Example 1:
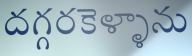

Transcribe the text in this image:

దగ్గరకెళ్ళాను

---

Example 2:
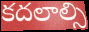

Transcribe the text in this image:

కదలాల్సి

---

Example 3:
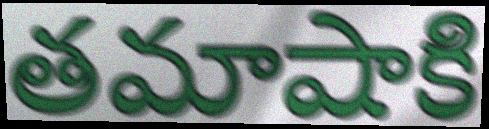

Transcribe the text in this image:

తమాషాకి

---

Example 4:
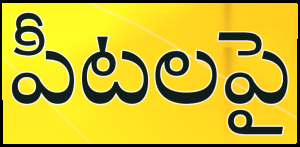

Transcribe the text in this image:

పీటలపై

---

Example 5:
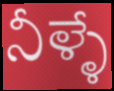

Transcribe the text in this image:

నీళ్ళే